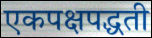
एकपक्षपद्धती